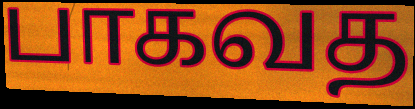
பாகவத